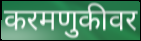
करमणुकीवर